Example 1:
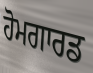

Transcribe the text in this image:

ਹੋਮਗਾਰਡ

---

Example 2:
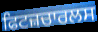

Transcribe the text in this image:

ਫਿਟਜ਼ਚਾਰਲਸ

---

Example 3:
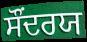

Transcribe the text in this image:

ਸੌਂਦਰਯ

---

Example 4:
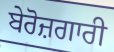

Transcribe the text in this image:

ਬੇਰੋਜ਼ਗਾਰੀ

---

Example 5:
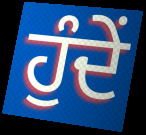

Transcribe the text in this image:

ਹੁੰਦੇਂ